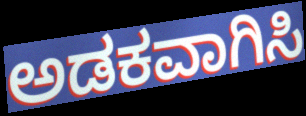
ಅಡಕವಾಗಿಸಿ